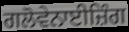
ਗਲੋਵੇਨਾਈਜ਼ਿੰਗ